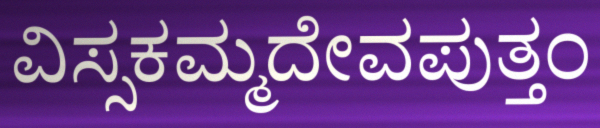
ವಿಸ್ಸಕಮ್ಮದೇವಪುತ್ತಂ